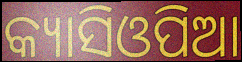
କ୍ୟାସିଓପିଆ